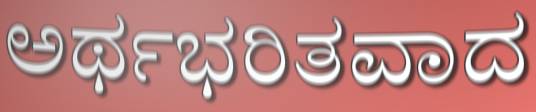
ಅರ್ಥಭರಿತವಾದ